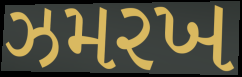
ઝમરખ